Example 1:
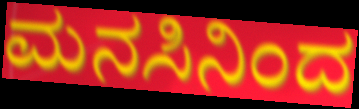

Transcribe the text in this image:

ಮನಸಿನಿಂದ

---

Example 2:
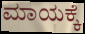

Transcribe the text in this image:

ಮಾಯಕ್ಕೆ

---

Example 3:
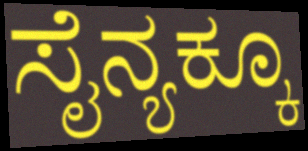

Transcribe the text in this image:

ಸೈನ್ಯಕ್ಕೂ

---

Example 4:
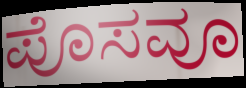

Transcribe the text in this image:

ಪೊಸವೂ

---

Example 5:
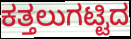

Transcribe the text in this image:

ಕತ್ತಲುಗಟ್ಟಿದ